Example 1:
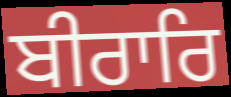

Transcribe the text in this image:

ਬੀਰਾਰਿ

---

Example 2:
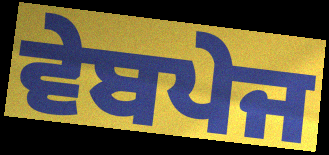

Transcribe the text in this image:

ਵੇਬਪੇਜ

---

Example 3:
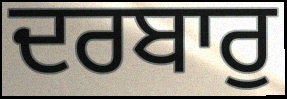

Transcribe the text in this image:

ਦਰਬਾਰੁ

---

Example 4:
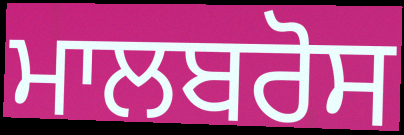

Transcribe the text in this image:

ਮਾਲਬਰੋਸ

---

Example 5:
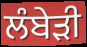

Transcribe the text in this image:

ਲੰਬੇੜੀ